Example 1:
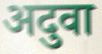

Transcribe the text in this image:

अदुवा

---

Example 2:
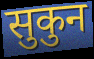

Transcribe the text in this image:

सुकुन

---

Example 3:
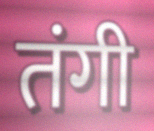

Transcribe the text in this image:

तंगी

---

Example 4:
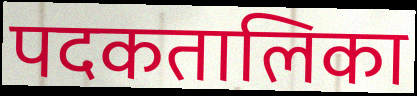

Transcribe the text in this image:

पदकतालिका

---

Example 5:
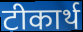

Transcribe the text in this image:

टीकार्थ